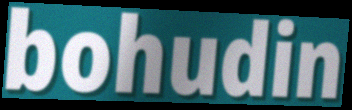
bohudin